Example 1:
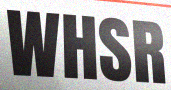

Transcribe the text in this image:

WHSR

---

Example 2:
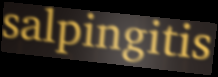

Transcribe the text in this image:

salpingitis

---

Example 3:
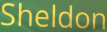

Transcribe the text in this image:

Sheldon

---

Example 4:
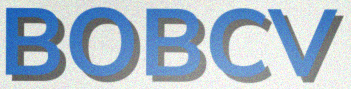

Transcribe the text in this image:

BOBCV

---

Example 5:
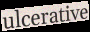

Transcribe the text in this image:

ulcerative